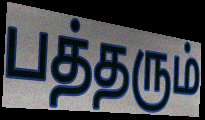
பத்தரும்